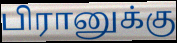
பிரானுக்கு